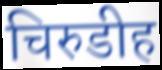
चिरुडीह